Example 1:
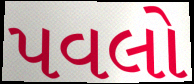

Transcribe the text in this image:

પવલો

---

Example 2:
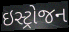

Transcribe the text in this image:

ઇસ્ટ્રોજન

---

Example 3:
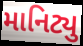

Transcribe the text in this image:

માનિટ્યુ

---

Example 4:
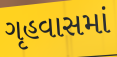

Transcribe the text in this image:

ગૃહવાસમાં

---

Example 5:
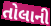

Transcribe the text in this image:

તોલાની